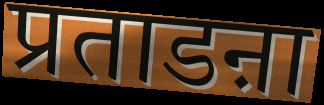
प्रताडऩा